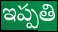
ఇప్పతి